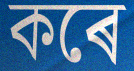
কৰে